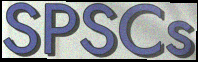
SPSCs